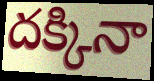
దక్కినా